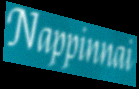
Nappinnai